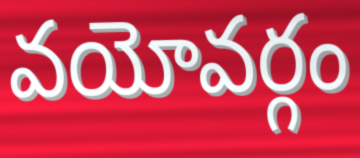
వయోవర్గం